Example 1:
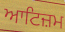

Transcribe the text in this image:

ਆਟਿਜ਼ਮ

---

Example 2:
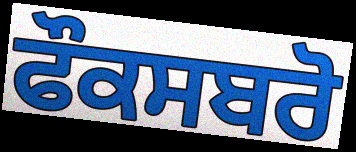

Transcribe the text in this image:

ਫੌਕਸਬਰੋ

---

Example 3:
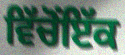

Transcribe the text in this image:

ਵਿੱਚੋਂਇੱਕ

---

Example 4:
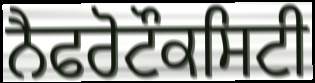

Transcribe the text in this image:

ਨੈਫਰੋਟੌਕਸਿਟੀ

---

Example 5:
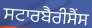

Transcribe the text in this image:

ਸਟਾਰਬੈਰੀਸੈਂਸ